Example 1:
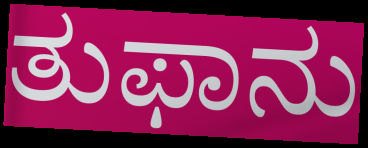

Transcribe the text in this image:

ತುಫಾನು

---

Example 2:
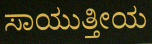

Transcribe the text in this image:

ಸಾಯುತ್ತೀಯ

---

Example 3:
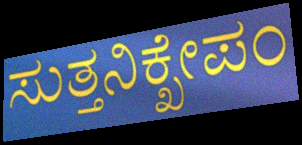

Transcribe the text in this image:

ಸುತ್ತನಿಕ್ಖೇಪಂ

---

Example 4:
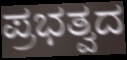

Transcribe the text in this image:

ಪ್ರಭತ್ವದ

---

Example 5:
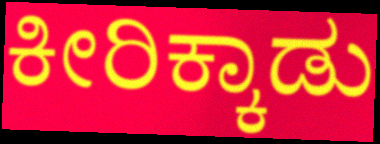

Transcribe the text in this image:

ಕೀರಿಕ್ಕಾಡು